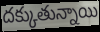
దక్కుతున్నాయి